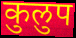
कुलुप